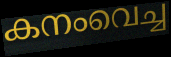
കനംവെച്ച